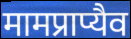
मामप्राप्यैव